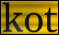
kot